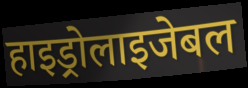
हाइड्रोलाइजेबल